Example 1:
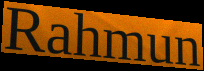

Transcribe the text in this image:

Rahmun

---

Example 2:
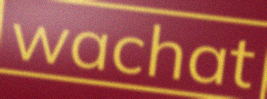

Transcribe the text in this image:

wachat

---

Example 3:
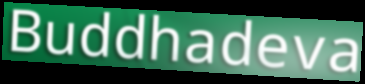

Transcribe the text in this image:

Buddhadeva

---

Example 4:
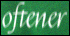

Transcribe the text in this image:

oftener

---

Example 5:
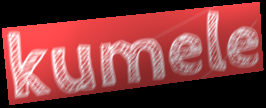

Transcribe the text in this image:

kumele